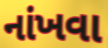
નાંખવા